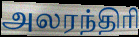
அலரந்திரி